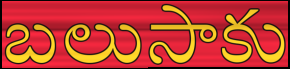
బలుసాకు